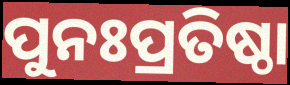
ପୁନଃପ୍ରତିଷ୍ଠା